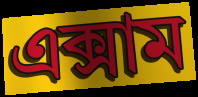
এক্সাম